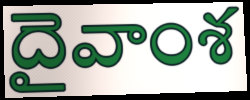
దైవాంశ